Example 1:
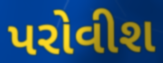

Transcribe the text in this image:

પરોવીશ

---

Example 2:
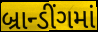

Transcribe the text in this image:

બ્રાન્ડીંગમાં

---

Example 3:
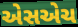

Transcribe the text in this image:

એસએચ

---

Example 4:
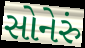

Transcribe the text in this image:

સોનેરું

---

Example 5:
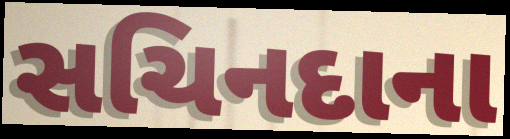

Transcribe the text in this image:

સચિનદાના